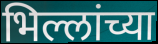
भिल्लांच्या